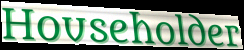
Householder